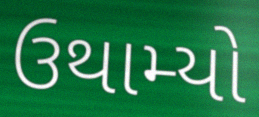
ઉથામ્યો